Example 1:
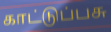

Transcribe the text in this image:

காட்டுப்பசு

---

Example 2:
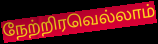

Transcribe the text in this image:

நேற்றிரவெல்லாம்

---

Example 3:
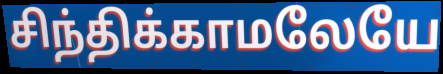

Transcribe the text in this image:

சிந்திக்காமலேயே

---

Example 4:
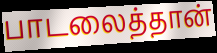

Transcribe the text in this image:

பாடலைத்தான்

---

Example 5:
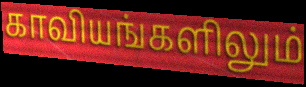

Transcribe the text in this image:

காவியங்களிலும்